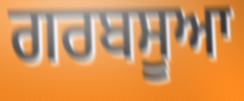
ਗਰਬਸੂਆ